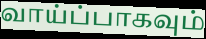
வாய்ப்பாகவும்